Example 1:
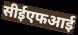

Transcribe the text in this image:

सीईएफआई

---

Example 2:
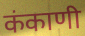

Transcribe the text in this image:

कंकाणी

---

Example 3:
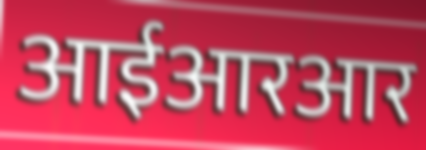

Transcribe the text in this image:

आईआरआर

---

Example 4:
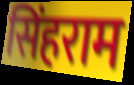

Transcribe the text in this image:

सिंहराम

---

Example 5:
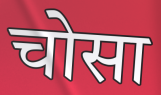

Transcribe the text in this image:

चोसा